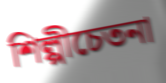
শিল্পীচেতনা